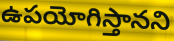
ఉపయోగిస్తానని